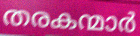
തരകന്മാർ